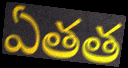
ఏతత